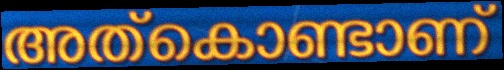
അത്കൊണ്ടാണ്